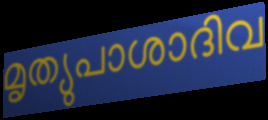
മൃത്യുപാശാദിവ